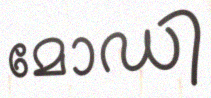
മോഡി